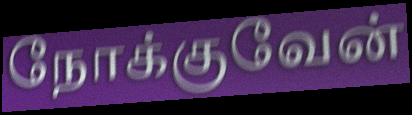
நோக்குவேன்